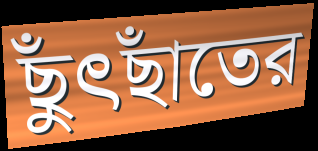
ছুঁৎছাঁতের